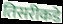
तिसरीकडे